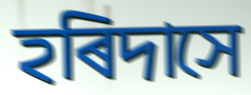
হৰিদাসে